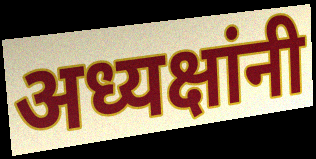
अध्यक्षांनी